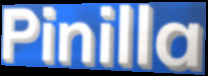
Pinilla